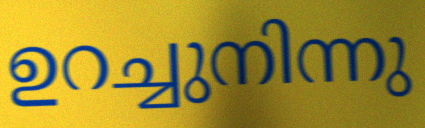
ഉറച്ചുനിന്നു